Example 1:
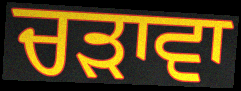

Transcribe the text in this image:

ਚੜਾਵਾ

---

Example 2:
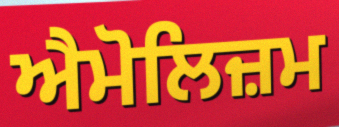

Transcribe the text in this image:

ਐਮੋਲਿਜ਼ਮ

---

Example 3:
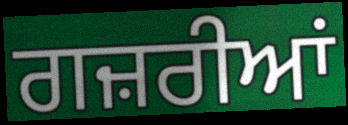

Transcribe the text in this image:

ਗਜ਼ਰੀਆਂ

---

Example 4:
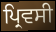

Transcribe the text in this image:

ਪ੍ਰਿਵਸੀ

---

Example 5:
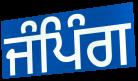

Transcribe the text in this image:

ਜੰਪਿੰਗ